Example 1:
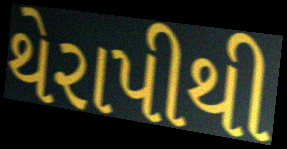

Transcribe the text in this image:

થેરાપીથી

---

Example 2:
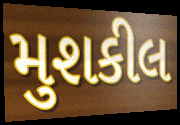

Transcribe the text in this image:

મુશકીલ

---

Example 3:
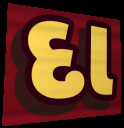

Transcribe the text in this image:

દા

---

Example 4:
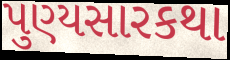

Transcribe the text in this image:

પુણ્યસારકથા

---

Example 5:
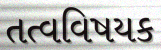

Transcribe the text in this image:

તત્વવિષયક